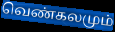
வெண்கலமும்